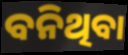
ବନିଥିବା